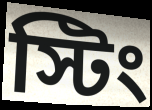
স্টিং